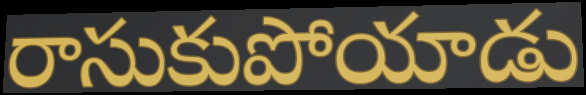
రాసుకుపోయాడు